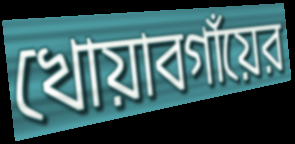
খোয়াবগাঁয়ের